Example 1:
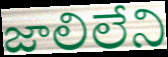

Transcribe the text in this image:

జాలిలేని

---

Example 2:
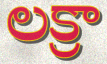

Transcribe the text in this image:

లక్రా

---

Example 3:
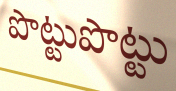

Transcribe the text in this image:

పొట్టుపొట్టు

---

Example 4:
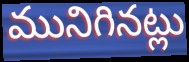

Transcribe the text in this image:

మునిగినట్లు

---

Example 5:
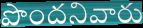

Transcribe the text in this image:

పొందనివారు